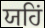
ਯਹਿਂ